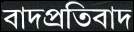
বাদপ্রতিবাদ